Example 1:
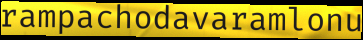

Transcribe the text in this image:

rampachodavaramlonu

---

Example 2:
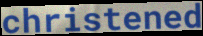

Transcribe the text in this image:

christened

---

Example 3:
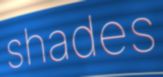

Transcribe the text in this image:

shades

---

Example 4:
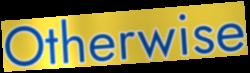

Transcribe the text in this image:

Otherwise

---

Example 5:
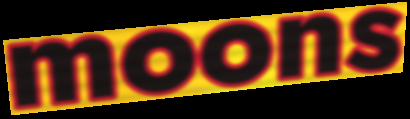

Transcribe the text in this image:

moons